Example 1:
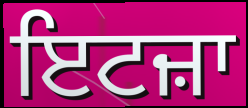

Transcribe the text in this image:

ਇਟਜ਼ਾ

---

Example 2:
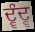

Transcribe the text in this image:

ਦ੍ਵੰਦ੍ਵ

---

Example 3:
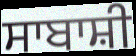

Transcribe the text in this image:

ਸਾਬਾਸ਼ੀ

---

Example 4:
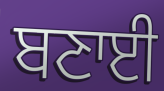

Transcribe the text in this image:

ਬਣਾਈ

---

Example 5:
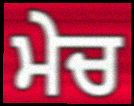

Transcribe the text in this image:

ਮੇਚ